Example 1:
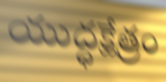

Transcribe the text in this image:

యుద్ధక్షేత్రం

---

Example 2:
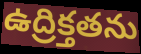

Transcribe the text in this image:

ఉద్రిక్తతను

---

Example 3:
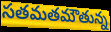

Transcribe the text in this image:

సతమతమౌతున్న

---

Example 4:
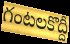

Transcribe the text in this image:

గంటలకొద్దీ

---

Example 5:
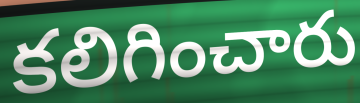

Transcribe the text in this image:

కలిగించారు